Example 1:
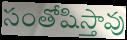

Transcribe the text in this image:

సంతోషిస్తావు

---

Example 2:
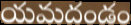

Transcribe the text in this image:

యమదండం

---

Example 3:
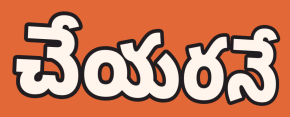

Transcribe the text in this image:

చేయరనే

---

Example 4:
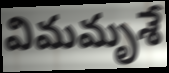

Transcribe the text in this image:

విమమృశే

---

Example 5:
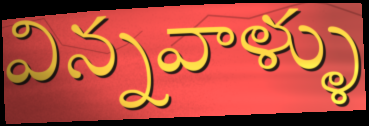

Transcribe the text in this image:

విన్నవాళ్ళు